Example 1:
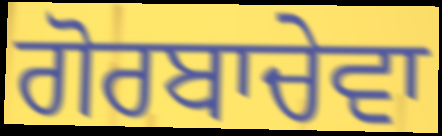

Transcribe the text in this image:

ਗੋਰਬਾਚੇਵਾ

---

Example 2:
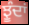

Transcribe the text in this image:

ਝੂੰਦਾਂ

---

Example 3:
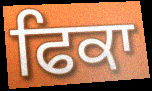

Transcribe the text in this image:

ਫਿਕਾ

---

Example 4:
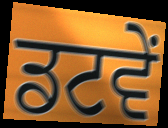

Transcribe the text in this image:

ਡਟਵੇਂ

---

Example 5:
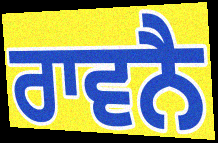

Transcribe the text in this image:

ਰਾਵਨੈ